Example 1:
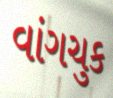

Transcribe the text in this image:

વાંગચુક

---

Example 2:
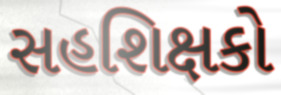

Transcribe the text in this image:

સહશિક્ષકો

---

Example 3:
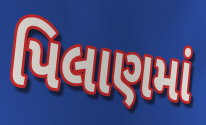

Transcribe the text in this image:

પિલાણમાં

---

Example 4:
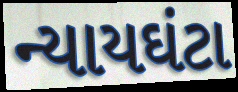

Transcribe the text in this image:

ન્યાયઘંટા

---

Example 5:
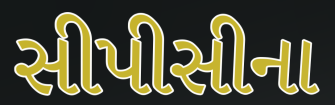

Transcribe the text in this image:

સીપીસીના